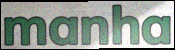
manha